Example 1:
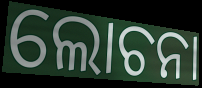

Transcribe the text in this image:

ଲୋଚନା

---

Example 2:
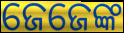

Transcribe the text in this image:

ଜେଜେଙ୍କ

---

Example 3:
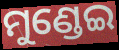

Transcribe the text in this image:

ମୁଣ୍ଡେଇ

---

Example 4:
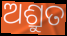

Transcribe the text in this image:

ଅଶ୍ରୁତ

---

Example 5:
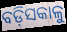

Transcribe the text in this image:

ବଡ଼ିସକାଳୁ